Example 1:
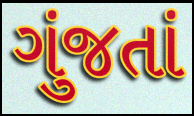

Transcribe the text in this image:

ગુંજતાં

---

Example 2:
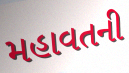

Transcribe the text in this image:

મહાવતની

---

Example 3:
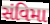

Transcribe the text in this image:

સંવિમા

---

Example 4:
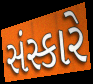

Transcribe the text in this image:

સંસ્કારે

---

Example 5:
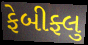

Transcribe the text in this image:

ફેબીફ્લુ